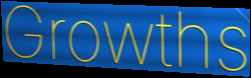
Growths